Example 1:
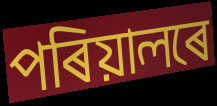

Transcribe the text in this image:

পৰিয়ালৰে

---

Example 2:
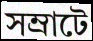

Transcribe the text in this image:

সম্ৰাটে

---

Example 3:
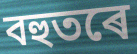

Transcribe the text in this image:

বহুতৰে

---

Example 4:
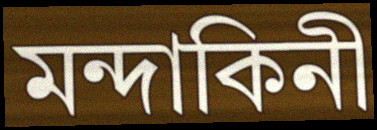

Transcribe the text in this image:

মন্দাকিনী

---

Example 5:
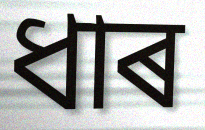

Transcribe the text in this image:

ধাৰ